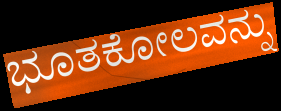
ಭೂತಕೋಲವನ್ನು